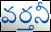
వర్తనీ